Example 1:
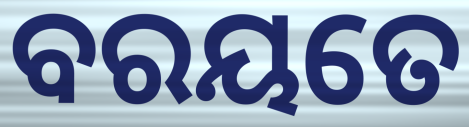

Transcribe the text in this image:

ବରୟତେ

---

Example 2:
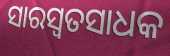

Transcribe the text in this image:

ସାରସ୍ଵତସାଧକ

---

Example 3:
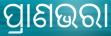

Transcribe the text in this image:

ପ୍ରାଣଭରା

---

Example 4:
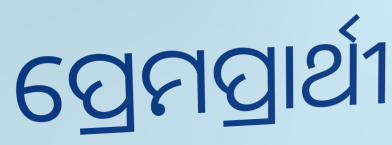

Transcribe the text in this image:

ପ୍ରେମପ୍ରାର୍ଥୀ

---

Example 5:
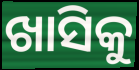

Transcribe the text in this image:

ଖାସିକୁ